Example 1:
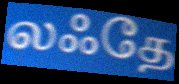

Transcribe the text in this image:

லஃதே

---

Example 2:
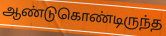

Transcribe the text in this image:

ஆண்டுகொண்டிருந்த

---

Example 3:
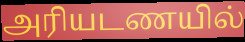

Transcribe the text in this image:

அரியடணயில்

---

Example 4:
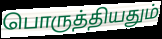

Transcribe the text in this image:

பொருத்தியதும்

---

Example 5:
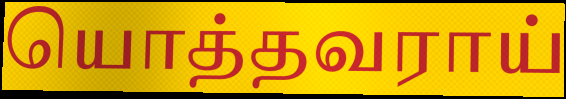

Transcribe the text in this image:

யொத்தவராய்